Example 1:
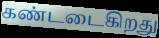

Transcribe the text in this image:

கண்டடைகிறது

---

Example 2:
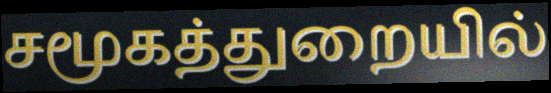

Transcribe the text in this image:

சமூகத்துறையில்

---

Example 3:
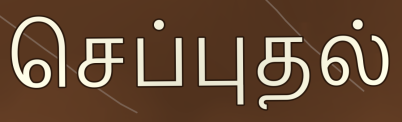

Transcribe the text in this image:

செப்புதல்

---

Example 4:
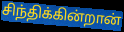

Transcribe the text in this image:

சிந்திக்கின்றான்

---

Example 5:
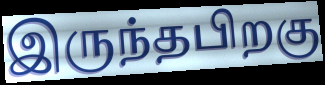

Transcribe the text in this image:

இருந்தபிறகு